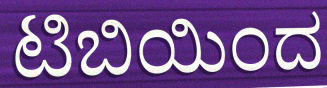
ಟಿಬಿಯಿಂದ